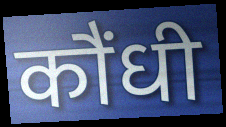
कौंधी